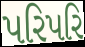
પરિપરિ